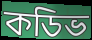
কডিভ